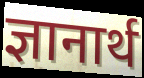
ज्ञानार्थ